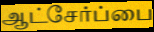
ஆட்சேர்ப்பை